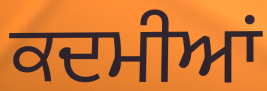
ਕਦਮੀਆਂ